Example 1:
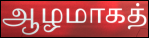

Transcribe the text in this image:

ஆழமாகத்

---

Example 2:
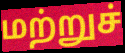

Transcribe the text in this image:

மற்றுச்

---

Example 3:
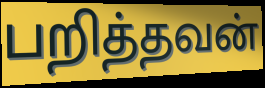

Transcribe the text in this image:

பறித்தவன்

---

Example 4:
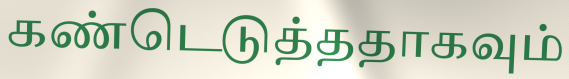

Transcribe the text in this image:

கண்டெடுத்ததாகவும்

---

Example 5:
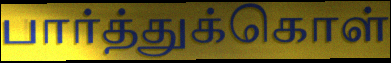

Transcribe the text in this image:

பார்த்துக்கொள்